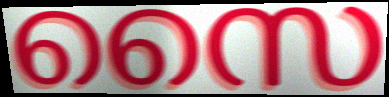
സൈ